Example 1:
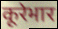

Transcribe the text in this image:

कूरेभार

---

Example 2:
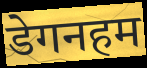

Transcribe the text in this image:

डेगनहम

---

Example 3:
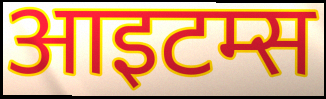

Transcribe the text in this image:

आइटम्‍स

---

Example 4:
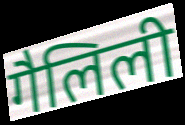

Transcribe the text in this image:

गैलिली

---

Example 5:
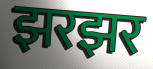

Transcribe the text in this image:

झरझर